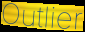
Outlier